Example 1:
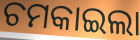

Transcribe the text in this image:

ଚମକାଇଲା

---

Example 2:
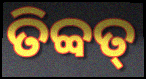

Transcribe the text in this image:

ତିବ୍ବତ୍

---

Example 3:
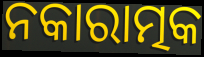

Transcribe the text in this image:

ନକାରାତ୍ମକ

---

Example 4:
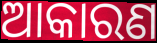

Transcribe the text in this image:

ଆକାରଣ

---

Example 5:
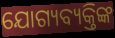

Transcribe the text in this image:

ଯୋଗ୍ୟବ୍ୟକ୍ତିଙ୍କ